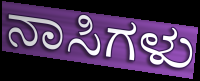
ನಾಸಿಗಳು